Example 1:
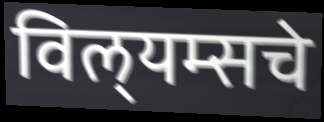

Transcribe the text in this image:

विल्यम्सचे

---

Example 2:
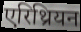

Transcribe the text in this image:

एरिथ्रियन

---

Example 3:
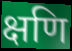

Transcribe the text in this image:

क्षणि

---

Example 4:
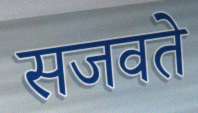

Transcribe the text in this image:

सजवते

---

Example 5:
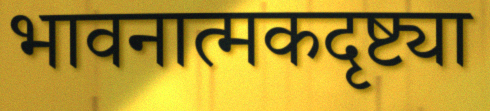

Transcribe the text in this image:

भावनात्मकदृष्ट्या